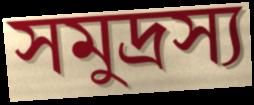
সমুদ্রস্য